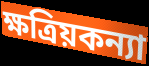
ক্ষত্রিয়কন্যা